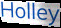
Holley